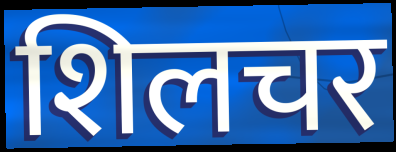
शिलचर